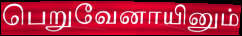
பெறுவேனாயினும்